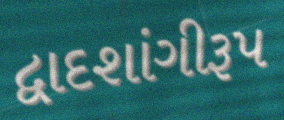
દ્વાદશાંગીરૂપ